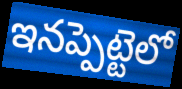
ఇనప్పెట్టెలో